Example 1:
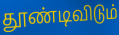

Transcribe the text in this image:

தூண்டிவிடும்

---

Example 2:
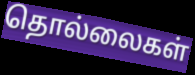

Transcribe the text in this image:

தொல்லைகள்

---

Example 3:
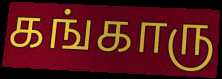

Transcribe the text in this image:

கங்காரு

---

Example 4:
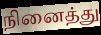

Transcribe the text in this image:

நினைத்து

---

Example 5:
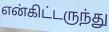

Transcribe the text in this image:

என்கிட்டருந்து